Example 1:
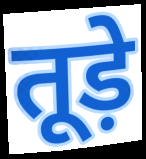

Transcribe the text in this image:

तूड़े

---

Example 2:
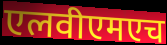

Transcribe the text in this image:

एलवीएमएच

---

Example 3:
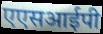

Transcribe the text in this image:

एएसआईपी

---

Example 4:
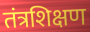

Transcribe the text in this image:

तंत्रशिक्षण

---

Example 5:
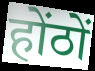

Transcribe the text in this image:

होंठों